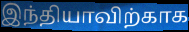
இந்தியாவிற்காக